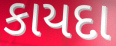
કાયદા